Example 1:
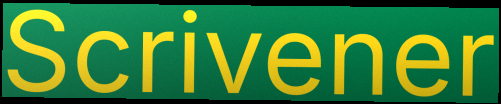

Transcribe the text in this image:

Scrivener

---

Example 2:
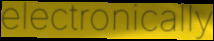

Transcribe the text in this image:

electronically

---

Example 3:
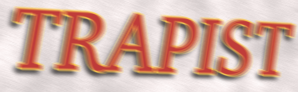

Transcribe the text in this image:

TRAPIST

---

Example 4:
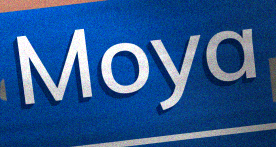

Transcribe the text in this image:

Moya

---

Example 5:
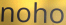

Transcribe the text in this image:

noho